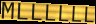
MLLLLLL